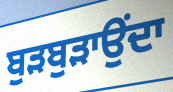
ਬੁੜਬੁੜਾਉਂਦਾ